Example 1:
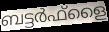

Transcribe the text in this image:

ബട്ടർഫ്ളൈ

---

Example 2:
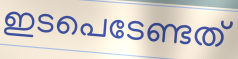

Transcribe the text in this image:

ഇടപെടേണ്ടത്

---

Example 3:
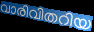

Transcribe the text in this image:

വാരിവിതറിയ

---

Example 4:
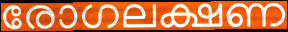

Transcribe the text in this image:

രോഗലക്ഷണ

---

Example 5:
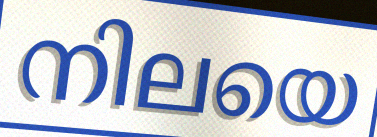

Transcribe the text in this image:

നിലയെ